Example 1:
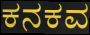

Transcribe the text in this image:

ಕನಕವ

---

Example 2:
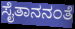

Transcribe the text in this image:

ಸೈತಾನನಂತೆ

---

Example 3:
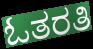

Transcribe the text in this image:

ಓತರತಿ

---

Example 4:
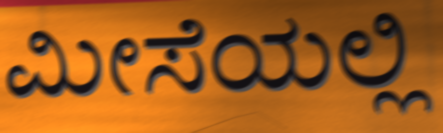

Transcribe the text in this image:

ಮೀಸೆಯಲ್ಲಿ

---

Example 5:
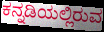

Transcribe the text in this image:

ಕನ್ನಡಿಯಲ್ಲಿರುವ